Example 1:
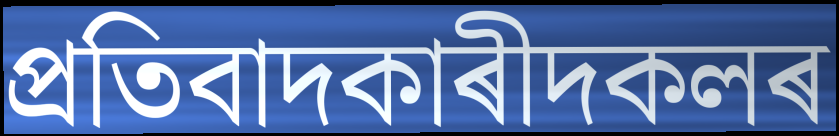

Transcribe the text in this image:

প্ৰতিবাদকাৰীদকলৰ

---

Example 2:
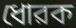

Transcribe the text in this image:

ধোৱক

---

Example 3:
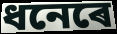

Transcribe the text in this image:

ধনেৰে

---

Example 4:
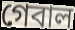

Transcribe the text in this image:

গেবাল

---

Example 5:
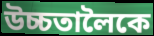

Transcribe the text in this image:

উচ্চতালৈকে